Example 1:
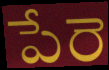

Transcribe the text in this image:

పేరె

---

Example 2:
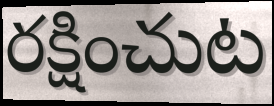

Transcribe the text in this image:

రక్షించుట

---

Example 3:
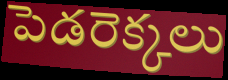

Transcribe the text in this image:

పెడరెక్కలు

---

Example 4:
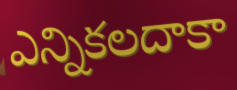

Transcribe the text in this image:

ఎన్నికలదాకా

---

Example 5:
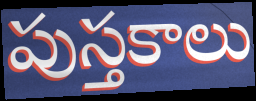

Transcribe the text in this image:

పుస్తకాలు